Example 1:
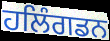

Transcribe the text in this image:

ਹਲਿੰਗਡਨ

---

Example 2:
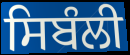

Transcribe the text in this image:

ਸਿਬੰਲੀ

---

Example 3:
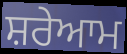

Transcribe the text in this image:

ਸ਼ਰੇਆਮ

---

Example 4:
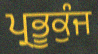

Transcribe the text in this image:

ਪ੍ਰਭੂਕੁੰਜ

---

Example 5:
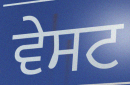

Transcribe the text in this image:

ਵੇਸਟ